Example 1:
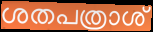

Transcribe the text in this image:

ശതപത്രാശ്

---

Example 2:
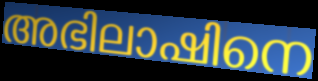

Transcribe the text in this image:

അഭിലാഷിനെ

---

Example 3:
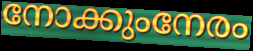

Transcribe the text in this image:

നോക്കുംനേരം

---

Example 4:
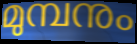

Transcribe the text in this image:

മുമ്പനും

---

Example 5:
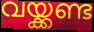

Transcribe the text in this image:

വയ്ക്കണ്ട